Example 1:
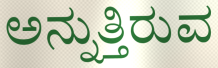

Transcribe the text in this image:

ಅನ್ನುತ್ತಿರುವ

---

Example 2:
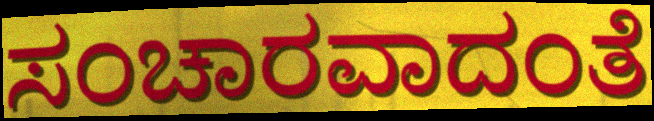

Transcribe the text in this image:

ಸಂಚಾರವಾದಂತೆ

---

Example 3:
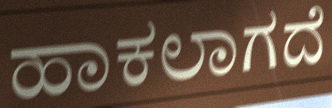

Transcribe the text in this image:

ಹಾಕಲಾಗದೆ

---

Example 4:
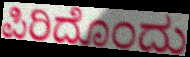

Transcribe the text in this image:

ಪಿರಿದೊಂದು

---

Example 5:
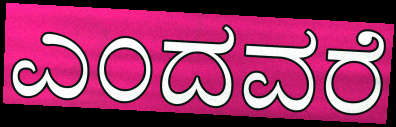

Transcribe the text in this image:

ಎಂದವರೆ